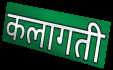
कलागती